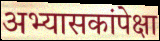
अभ्यासकांपेक्षा